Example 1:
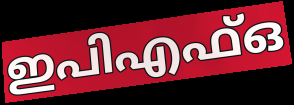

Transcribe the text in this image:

ഇപിഎഫ്ഒ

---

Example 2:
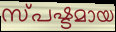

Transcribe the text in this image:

സ്പഷ്ടമായ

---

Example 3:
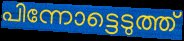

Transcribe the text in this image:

പിന്നോട്ടെടുത്ത്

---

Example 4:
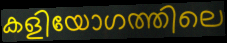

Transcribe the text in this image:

കളിയോഗത്തിലെ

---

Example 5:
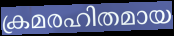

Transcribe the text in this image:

ക്രമരഹിതമായ